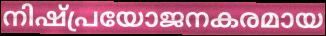
നിഷ്പ്രയോജനകരമായ